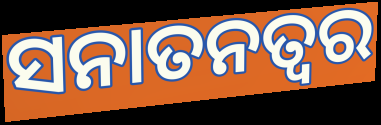
ସନାତନତ୍ୱର